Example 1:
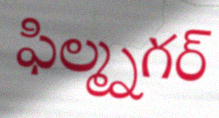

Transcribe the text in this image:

ఫిల్మ్నగర్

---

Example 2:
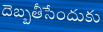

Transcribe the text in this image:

దెబ్బతీసేందుకు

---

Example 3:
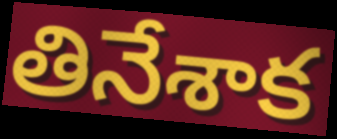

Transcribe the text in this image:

తినేశాక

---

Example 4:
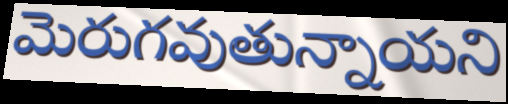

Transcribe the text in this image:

మెరుగవుతున్నాయని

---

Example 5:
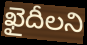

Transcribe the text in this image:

ఖైదీలని